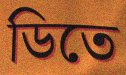
ডিতে